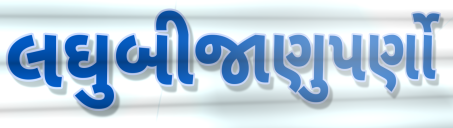
લઘુબીજાણુપર્ણો